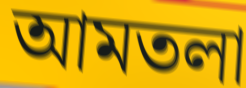
আমতলা